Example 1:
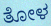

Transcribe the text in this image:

ತೋಳ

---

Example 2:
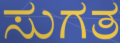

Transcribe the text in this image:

ಸುಗತ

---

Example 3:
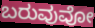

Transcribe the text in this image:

ಬರುವುವೋ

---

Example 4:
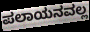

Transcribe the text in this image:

ಪಲಾಯನವಲ್ಲ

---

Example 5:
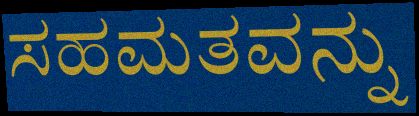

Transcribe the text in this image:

ಸಹಮತವನ್ನು